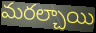
మరల్చాయి